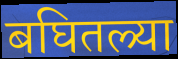
बघितल्या